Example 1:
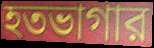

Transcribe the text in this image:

হতভাগার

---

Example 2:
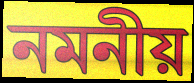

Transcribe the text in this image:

নমনীয়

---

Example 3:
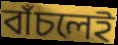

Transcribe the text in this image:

বাঁচলেই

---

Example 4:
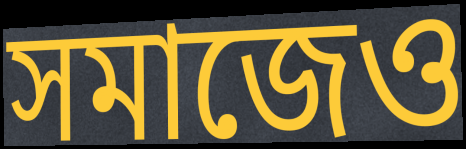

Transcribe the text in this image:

সমাজেও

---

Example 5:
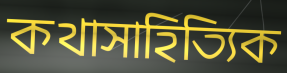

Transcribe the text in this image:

কথাসাহিত্যিক